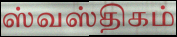
ஸ்வஸ்திகம்